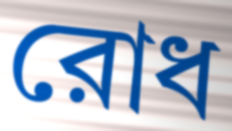
রোধ